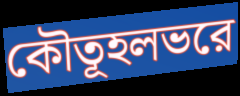
কৌতূহলভরে